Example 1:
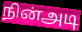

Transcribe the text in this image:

நின்அடி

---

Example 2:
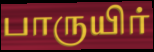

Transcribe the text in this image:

பாருயிர்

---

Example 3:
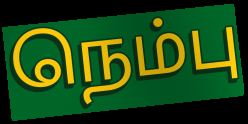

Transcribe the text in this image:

நெம்பு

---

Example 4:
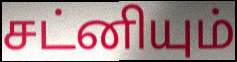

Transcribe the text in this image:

சட்னியும்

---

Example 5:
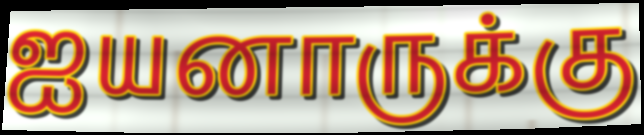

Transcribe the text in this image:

ஐயனாருக்கு